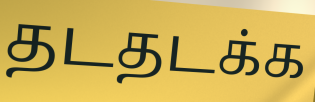
தடதடக்க